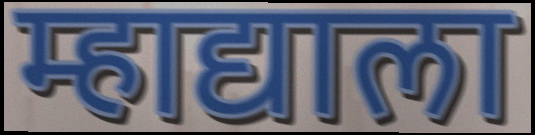
म्हाद्याला